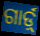
ଗାର୍ଡ଼୍